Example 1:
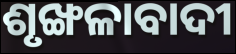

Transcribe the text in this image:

ଶୃଙ୍ଖଳାବାଦୀ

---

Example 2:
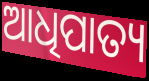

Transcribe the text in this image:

ଆଧିପାତ୍ୟ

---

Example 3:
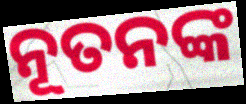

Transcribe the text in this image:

ନୂତନଙ୍କ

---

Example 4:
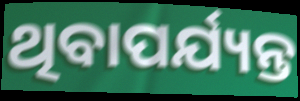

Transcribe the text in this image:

ଥିବାପର୍ଯ୍ୟନ୍ତ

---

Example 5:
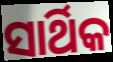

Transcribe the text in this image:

ସାର୍ଥିକ